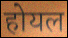
होयल